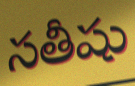
సతీషు